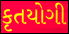
કૃતયોગી